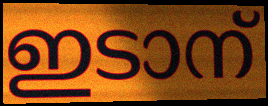
ഇടാന്